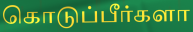
கொடுப்பீர்களா